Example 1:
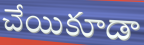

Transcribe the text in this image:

చేయికూడా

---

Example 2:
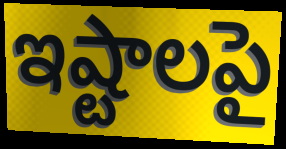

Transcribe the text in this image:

ఇష్టాలపై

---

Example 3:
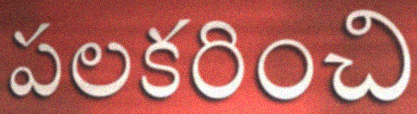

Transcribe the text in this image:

పలకరించి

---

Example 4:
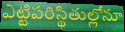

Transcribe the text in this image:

ఎట్టిపరిస్థితుల్లోనూ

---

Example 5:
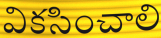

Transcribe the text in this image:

వికసించాలి